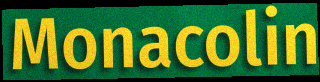
Monacolin